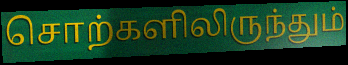
சொற்களிலிருந்தும்